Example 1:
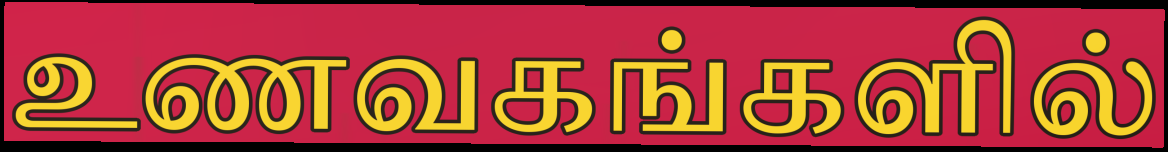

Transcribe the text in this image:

உணவகங்களில்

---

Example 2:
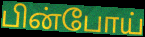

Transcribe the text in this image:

பின்போய்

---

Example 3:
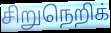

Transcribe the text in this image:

சிறுநெறிக்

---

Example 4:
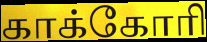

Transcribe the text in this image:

காக்கோரி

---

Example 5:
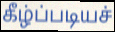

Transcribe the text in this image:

கீழ்ப்படியச்